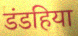
डंडहिया